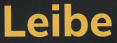
Leibe